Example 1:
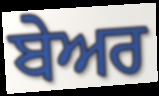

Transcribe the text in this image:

ਬੇਅਰ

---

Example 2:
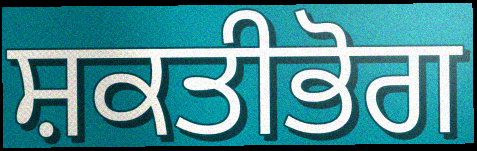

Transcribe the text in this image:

ਸ਼ਕਤੀਭੋਗ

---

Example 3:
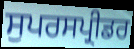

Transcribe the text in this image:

ਸੁਪਰਸਪ੍ਰੀਡਰ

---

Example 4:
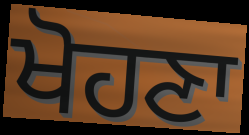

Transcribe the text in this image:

ਖੋਹਣਾ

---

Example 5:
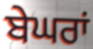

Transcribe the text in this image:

ਬੇਘਰਾਂ